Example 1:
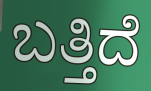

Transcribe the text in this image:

ಬತ್ತಿದೆ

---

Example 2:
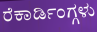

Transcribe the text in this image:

ರೆಕಾರ್ಡಿಂಗ್ಗಳು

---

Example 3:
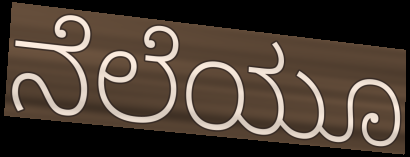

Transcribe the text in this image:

ನೆಲೆಯೂ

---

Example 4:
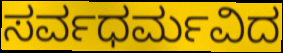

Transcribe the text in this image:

ಸರ್ವಧರ್ಮವಿದ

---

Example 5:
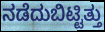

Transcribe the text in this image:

ನಡೆದುಬಿಟ್ಟಿತ್ತು